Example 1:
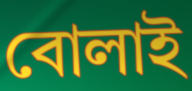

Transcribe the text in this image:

বোলাই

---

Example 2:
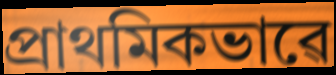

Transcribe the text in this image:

প্ৰাথমিকভাৱে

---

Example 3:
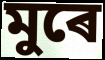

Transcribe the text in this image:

মুৰে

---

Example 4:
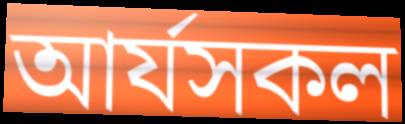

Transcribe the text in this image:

আৰ্যসকল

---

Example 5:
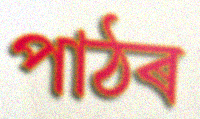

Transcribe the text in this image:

পাঠৰ